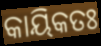
କାୟିକତଃ